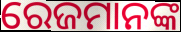
ରେଜମାନଙ୍କ